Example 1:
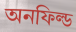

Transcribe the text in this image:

অনফিল্ড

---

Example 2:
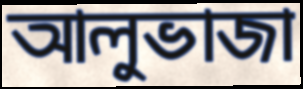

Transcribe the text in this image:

আলুভাজা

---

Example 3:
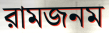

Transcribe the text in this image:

রামজনম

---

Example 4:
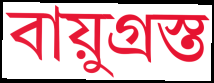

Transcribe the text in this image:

বায়ুগ্রস্ত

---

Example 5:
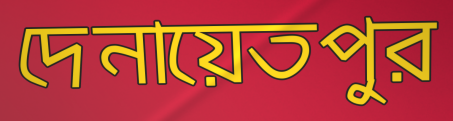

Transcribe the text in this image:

দেনায়েতপুর